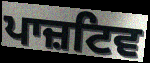
ਪਾਜ਼ਟਿਵ